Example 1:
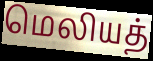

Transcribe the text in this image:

மெலியத்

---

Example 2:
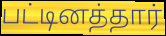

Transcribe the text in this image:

பட்டினத்தார்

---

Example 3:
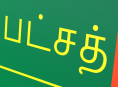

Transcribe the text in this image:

பட்சத்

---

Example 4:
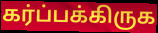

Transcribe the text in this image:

கர்ப்பக்கிருக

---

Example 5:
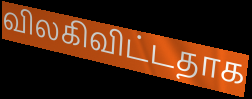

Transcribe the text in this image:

விலகிவிட்டதாக